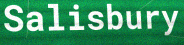
Salisbury